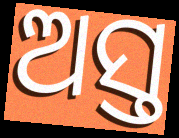
ଅସ୍ତ